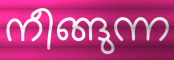
നീങ്ങുന്ന